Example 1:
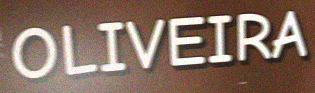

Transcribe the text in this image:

OLIVEIRA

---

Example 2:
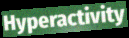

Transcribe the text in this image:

Hyperactivity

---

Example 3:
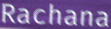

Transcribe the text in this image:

Rachana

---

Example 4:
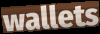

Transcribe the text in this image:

wallets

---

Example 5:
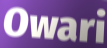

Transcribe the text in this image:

Owari